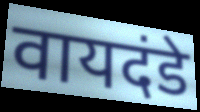
वायदंडे